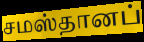
சமஸ்தானப்